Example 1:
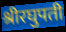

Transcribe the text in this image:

श्रीरघुपती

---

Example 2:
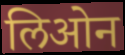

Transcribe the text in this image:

लिओन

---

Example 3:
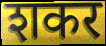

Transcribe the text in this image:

शकर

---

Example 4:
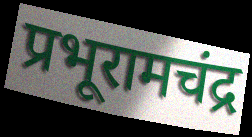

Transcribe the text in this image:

प्रभूरामचंद्र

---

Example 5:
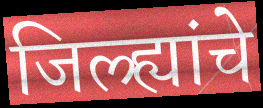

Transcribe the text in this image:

जिल्ह्यांचे